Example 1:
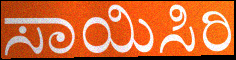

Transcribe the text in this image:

ಸಾಯಿಸಿರಿ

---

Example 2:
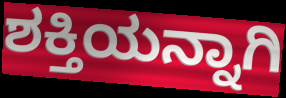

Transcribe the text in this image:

ಶಕ್ತಿಯನ್ನಾಗಿ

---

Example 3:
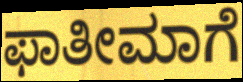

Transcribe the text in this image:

ಫಾತೀಮಾಗೆ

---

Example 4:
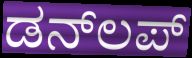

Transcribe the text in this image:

ಡನ್‌ಲಪ್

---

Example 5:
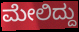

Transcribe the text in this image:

ಮೇಲಿದ್ದು